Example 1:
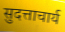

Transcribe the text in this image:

सुदत्ताचार्य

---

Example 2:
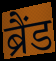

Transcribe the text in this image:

ब्रैंड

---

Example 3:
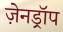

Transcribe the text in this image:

ज़ेनड्रॉप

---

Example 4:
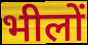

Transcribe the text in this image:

भीलों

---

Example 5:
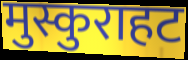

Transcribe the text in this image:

मुस्कुराहट